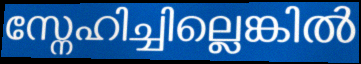
സ്നേഹിച്ചില്ലെങ്കിൽ